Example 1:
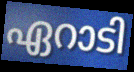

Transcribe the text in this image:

ഏറാടി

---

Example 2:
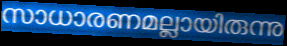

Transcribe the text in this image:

സാധാരണമല്ലായിരുന്നു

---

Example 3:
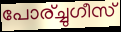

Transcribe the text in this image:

പോര്ച്ചുഗീസ്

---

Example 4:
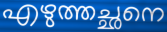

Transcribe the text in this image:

എഴുത്തച്ഛനെ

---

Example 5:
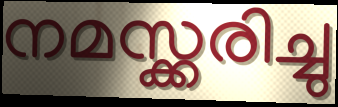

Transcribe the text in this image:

നമസ്ക്കരിച്ചു